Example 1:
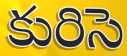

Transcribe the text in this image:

కురిసె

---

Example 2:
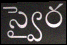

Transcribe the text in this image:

స్వైర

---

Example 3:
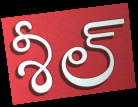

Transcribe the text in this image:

శీల్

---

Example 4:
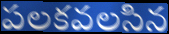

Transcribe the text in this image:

పలకవలసిన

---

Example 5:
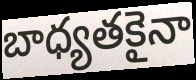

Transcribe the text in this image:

బాధ్యతకైనా